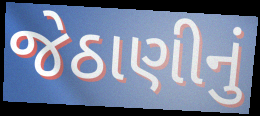
જેઠાણીનું